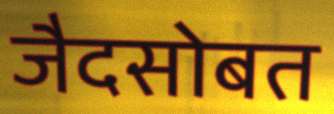
जैदसोबत